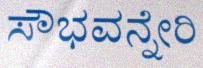
ಸೌಭವನ್ನೇರಿ